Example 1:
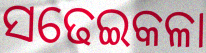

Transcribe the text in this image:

ସଢେଇକଳା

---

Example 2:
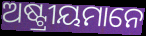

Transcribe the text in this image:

ଅଷ୍ଟ୍ରୀୟମାନେ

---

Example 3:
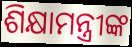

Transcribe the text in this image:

ଶିକ୍ଷାମନ୍ତ୍ରୀଙ୍କ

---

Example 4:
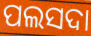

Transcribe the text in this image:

ପଲସଦା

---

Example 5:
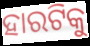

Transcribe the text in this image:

ହାରଟିକୁ